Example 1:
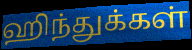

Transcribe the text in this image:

ஹிந்துக்கள்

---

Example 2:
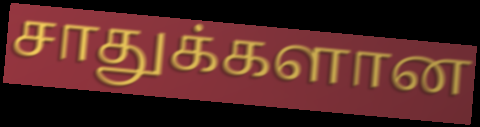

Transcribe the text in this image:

சாதுக்களான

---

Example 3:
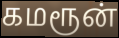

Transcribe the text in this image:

கமரூன்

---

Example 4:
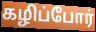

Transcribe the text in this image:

கழிப்போர்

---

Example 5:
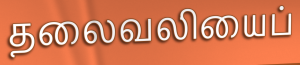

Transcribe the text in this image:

தலைவலியைப்